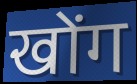
खोंग